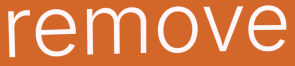
remove